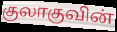
குலாகுவின்